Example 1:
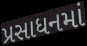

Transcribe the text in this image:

પ્રસાધનમાં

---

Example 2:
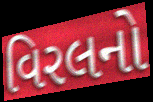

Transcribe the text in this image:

વિરલનો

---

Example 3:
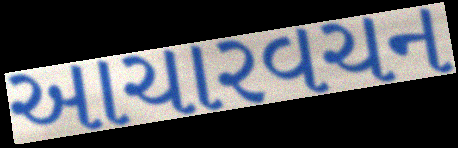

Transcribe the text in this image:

આચારવચન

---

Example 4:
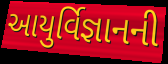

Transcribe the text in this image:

આયુર્વિજ્ઞાનની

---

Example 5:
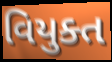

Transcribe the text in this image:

વિયુક્ત